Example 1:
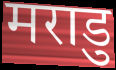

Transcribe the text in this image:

मराडु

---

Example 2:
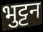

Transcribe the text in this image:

भुट्टन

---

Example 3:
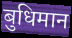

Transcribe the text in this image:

बुधिमान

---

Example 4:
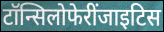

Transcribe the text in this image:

टॉन्सिलोफेरींजाइटिस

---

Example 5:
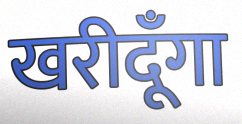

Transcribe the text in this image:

खरीदूँगा